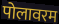
पोलावरम